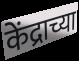
केंद्राच्या